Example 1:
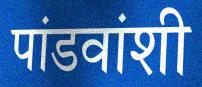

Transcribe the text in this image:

पांडवांशी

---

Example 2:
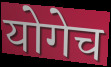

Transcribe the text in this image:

योगेच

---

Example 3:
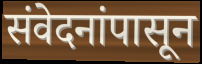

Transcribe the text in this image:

संवेदनांपासून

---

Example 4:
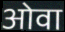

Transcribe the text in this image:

ओवा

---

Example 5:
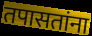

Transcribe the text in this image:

तपासतांना